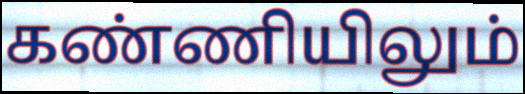
கண்ணியிலும்